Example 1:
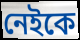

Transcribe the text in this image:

নেইকে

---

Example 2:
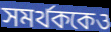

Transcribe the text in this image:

সমর্থককেও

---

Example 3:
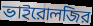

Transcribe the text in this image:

ভাইরোলজির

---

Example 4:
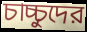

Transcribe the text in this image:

চাচ্চুদের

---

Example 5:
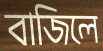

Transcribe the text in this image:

বাজিলে